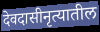
देवदासीनृत्यातील